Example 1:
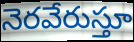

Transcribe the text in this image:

నెరవేరుస్తూ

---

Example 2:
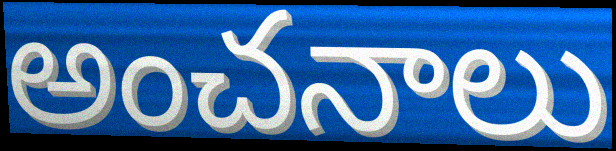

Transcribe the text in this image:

అంచనాలు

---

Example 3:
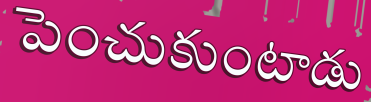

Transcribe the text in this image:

పెంచుకుంటాడు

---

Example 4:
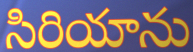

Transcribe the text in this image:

సిరియాను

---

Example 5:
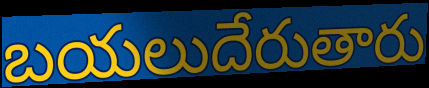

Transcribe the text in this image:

బయలుదేరుతారు